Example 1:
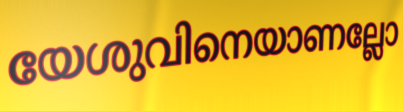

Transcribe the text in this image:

യേശുവിനെയാണല്ലോ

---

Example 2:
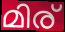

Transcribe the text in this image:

മിര്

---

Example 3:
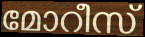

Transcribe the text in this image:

മോറീസ്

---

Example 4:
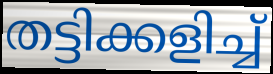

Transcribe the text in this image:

തട്ടിക്കളിച്ച്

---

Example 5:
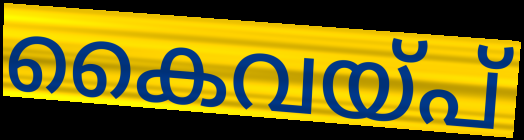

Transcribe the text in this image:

കൈവയ്പ്